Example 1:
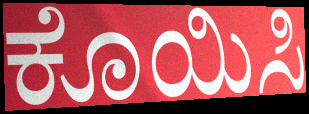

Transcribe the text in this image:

ಕೊಯಿಸಿ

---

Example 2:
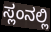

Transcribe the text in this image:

ಸ್ಲಂನಲ್ಲಿ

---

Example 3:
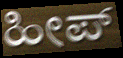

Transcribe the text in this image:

ಹೀಪ್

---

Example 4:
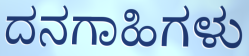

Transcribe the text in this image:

ದನಗಾಹಿಗಳು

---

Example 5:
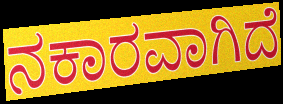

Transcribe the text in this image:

ನಕಾರವಾಗಿದೆ